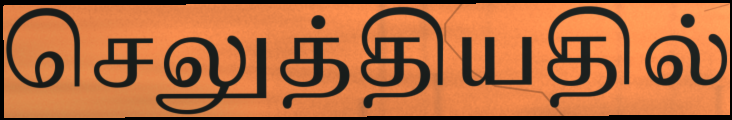
செலுத்தியதில்